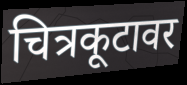
चित्रकूटावर